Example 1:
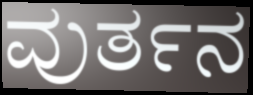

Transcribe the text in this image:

ವುರ್ತನ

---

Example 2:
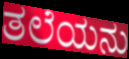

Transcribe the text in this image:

ತಲೆಯನು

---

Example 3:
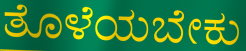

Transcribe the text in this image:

ತೊಳೆಯಬೇಕು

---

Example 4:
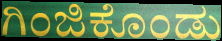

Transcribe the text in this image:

ಗಿಂಜಿಕೊಂಡು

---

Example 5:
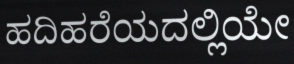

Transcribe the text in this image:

ಹದಿಹರೆಯದಲ್ಲಿಯೇ